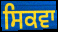
ਸਿਕਵਾ